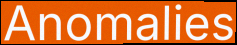
Anomalies